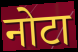
नोटा